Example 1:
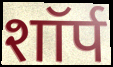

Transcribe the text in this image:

शॉर्प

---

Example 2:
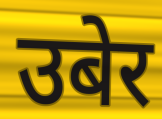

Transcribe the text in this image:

उबेर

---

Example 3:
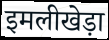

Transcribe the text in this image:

इमलीखेड़ा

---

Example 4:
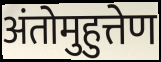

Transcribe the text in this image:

अंतोमुहुत्तेण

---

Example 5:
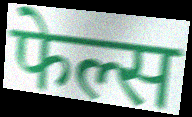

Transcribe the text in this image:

फेल्स